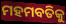
ମହମବତିକୁ